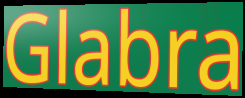
Glabra